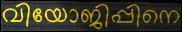
വിയോജിപ്പിനെ